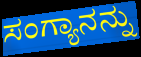
ಸಂಗ್ಯಾನನ್ನು